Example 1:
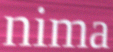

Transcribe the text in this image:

nima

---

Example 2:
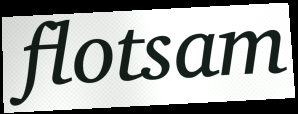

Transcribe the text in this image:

flotsam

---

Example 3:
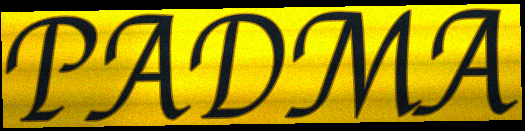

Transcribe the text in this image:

PADMA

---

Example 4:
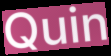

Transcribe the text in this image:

Quin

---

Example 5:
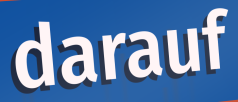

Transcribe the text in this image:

darauf